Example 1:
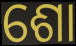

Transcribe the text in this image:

ଶୋ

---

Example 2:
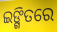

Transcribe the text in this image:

ଇଙ୍ଗିତରେ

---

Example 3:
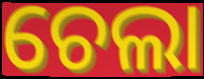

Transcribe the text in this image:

ଚେଲା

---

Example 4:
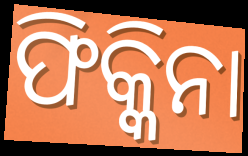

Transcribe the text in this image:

ଫିକ୍କିନା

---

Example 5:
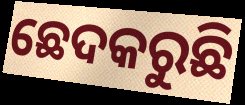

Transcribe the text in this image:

ଛେଦକରୁଛି